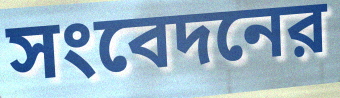
সংবেদনের